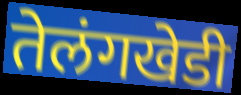
तेलंगखेडी